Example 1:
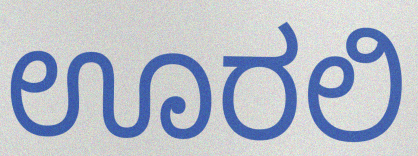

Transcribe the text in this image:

ಊರಲಿ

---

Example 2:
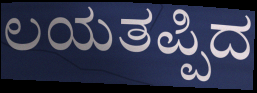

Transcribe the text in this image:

ಲಯತಪ್ಪಿದ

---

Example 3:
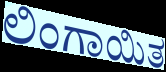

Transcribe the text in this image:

ಲಿಂಗಾಯಿತ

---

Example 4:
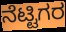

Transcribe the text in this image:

ನೆಟ್ಟಿಗರ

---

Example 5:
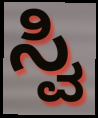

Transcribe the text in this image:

ಸ್ವಿ